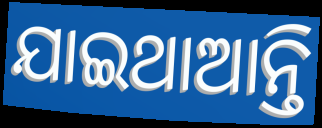
ଯାଇଥାଆନ୍ତି